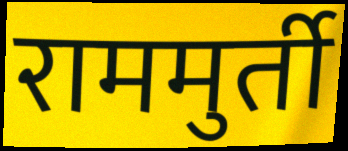
राममुर्ती